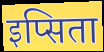
इप्सिता